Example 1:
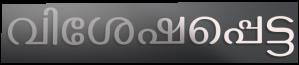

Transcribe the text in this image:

വിശേഷപ്പെട്ട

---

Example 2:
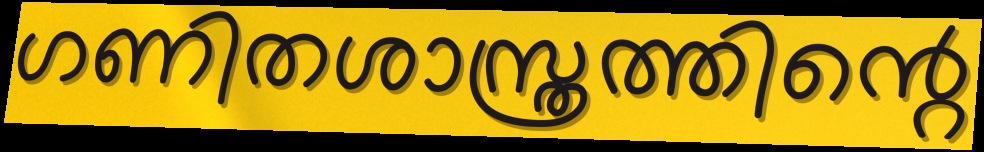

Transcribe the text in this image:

ഗണിതശാസ്ത്രത്തിന്റെ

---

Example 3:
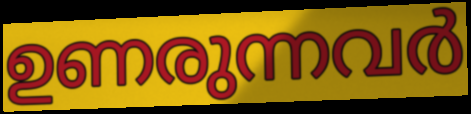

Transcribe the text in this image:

ഉണരുന്നവർ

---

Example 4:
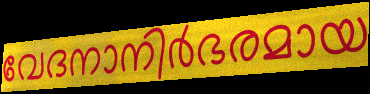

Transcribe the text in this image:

വേദനാനിർഭരമായ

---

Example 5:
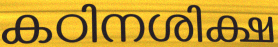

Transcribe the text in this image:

കഠിനശിക്ഷ